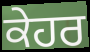
ਕੇਹਰ